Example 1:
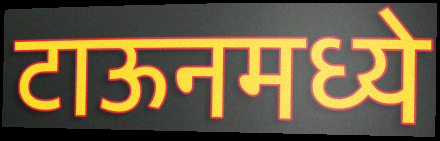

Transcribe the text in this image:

टाऊनमध्ये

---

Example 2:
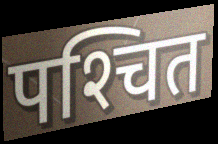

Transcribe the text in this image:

पश्चित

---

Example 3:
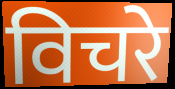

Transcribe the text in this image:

विचरे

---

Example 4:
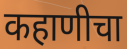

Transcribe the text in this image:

कहाणीचा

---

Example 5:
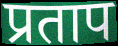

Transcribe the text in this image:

प्रताप